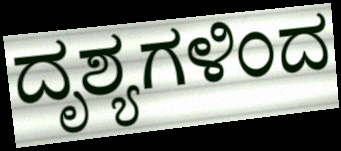
ದೃಶ್ಯಗಳಿಂದ